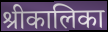
श्रीकालिका